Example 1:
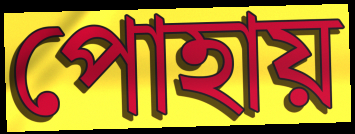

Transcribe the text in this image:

পোহায়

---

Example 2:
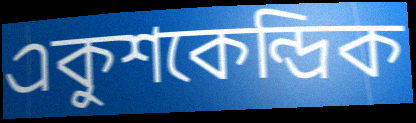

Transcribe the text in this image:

একুশকেন্দ্রিক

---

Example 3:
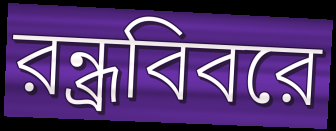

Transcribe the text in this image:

রন্ধ্রবিবরে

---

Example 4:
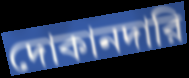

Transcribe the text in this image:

দোকানদারি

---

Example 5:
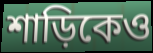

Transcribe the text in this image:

শাড়িকেও